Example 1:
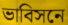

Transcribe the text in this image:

ভাবিসনে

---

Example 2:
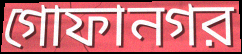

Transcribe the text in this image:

গোফানগর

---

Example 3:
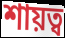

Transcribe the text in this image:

শায়ত্ব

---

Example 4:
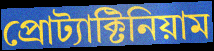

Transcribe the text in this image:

প্রোট্যাক্টিনিয়াম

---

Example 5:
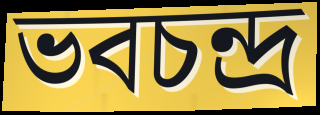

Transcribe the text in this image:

ভবচন্দ্র